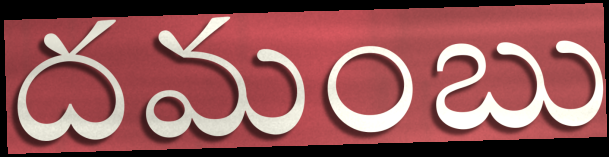
దమంబు